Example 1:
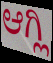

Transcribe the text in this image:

ಆಗ್ಲಿ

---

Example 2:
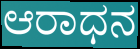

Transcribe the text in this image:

ಆರಾಧನ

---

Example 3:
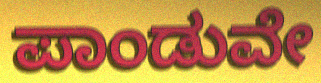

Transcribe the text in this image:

ಪಾಂಡುವೇ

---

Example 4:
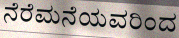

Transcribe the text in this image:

ನೆರೆಮನೆಯವರಿಂದ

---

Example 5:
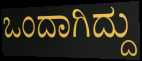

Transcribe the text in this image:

ಒಂದಾಗಿದ್ದು